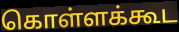
கொள்ளக்கூட